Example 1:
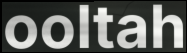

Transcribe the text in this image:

ooltah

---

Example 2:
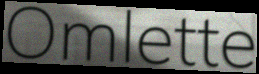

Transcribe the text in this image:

Omlette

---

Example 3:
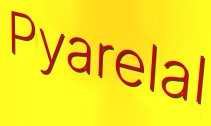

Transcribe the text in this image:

Pyarelal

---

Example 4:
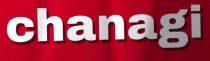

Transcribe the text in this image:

chanagi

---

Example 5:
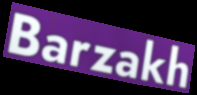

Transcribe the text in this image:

Barzakh